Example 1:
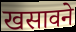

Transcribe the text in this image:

खसावने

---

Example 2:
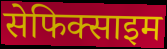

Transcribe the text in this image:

सेफिक्साइम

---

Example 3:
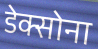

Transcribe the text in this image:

डेक्सोना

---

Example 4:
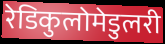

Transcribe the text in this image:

रेडिकुलोमेडुलरी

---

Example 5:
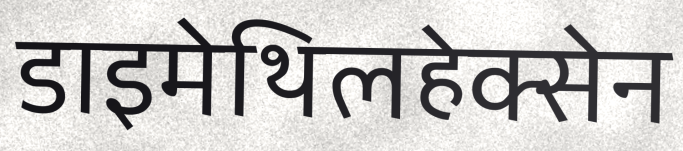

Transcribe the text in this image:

डाइमेथिलहेक्सेन